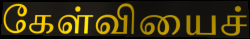
கேள்வியைச்